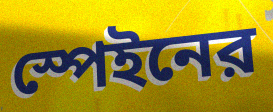
স্পেইনের